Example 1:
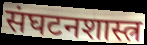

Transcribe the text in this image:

संघटनशास्त्र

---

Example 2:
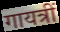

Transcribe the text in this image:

गायत्रीं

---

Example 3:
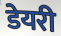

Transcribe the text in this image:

डेयरी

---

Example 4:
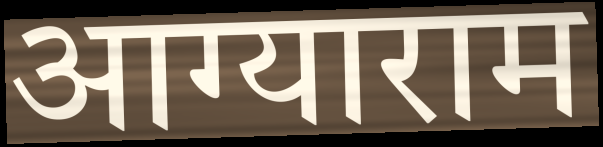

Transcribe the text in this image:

आग्याराम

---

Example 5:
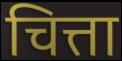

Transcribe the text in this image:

चित्ता